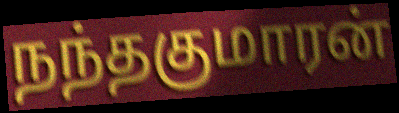
நந்தகுமாரன்